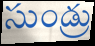
సుండ్రు